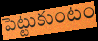
పెట్టుకుంటం